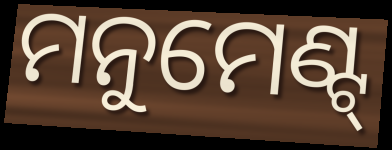
ମନୁମେଣ୍ଟ୍